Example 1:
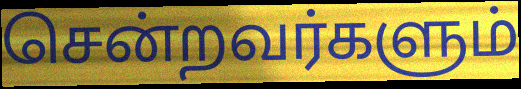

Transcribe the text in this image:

சென்றவர்களும்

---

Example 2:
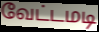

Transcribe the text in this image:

வேட்டமடி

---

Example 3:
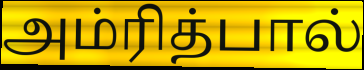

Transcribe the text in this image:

அம்ரித்பால்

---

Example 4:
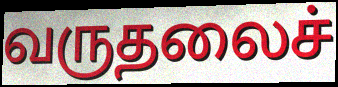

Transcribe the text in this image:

வருதலைச்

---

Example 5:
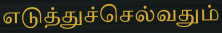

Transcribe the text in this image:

எடுத்துச்செல்வதும்